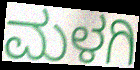
ಮಳಗಿ